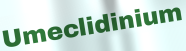
Umeclidinium